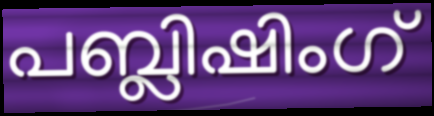
പബ്ലിഷിംഗ്